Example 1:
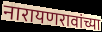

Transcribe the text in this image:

नारायणरावांच्या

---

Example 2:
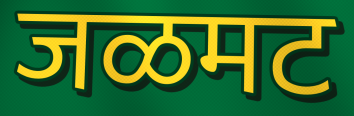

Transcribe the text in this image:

जळमट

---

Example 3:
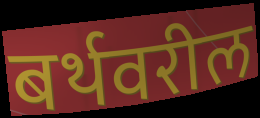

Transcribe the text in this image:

बर्थवरील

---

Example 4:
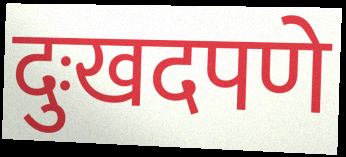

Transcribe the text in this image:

दुःखदपणे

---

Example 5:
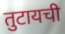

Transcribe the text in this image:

तुटायची